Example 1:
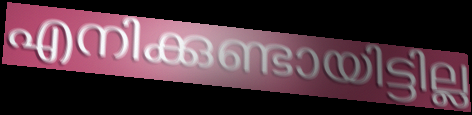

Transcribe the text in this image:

എനിക്കുണ്ടായിട്ടില്ല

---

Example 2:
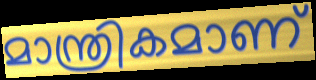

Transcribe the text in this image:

മാന്ത്രികമാണ്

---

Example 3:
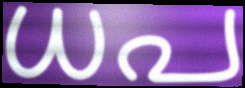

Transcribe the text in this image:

ധപ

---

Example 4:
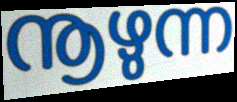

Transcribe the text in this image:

നൂഴുന്ന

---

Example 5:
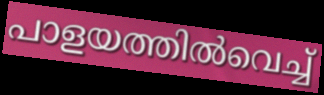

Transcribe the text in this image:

പാളയത്തിൽവെച്ച്